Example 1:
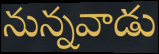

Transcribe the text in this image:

నున్నవాడు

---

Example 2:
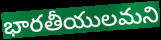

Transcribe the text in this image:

భారతీయులమని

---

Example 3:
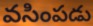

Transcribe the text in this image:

వసింపడు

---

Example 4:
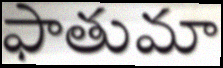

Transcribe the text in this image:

ఫాతుమా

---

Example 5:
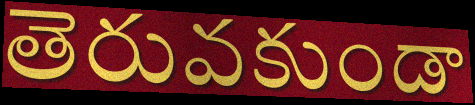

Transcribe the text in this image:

తెరువకుండా